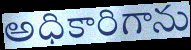
అధికారిగాను